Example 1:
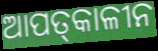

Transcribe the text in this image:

ଆପତ୍‌କାଳୀନ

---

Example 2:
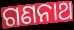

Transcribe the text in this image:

ଗଣନାଥ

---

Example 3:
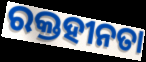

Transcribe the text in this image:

ରକ୍ତହୀନତା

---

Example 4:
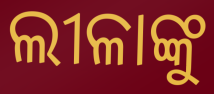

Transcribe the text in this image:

ଲୀଳାଙ୍କୁ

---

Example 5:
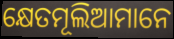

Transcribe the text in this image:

କ୍ଷେତମୂଲିଆମାନେ